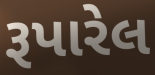
રૂપારેલ